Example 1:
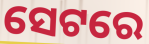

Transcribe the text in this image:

ସେଟରେ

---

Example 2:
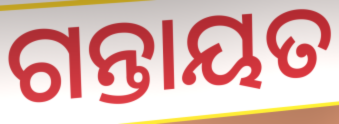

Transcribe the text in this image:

ଗନ୍ତାୟତ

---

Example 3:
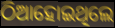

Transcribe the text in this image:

ଠିଆହୋଇଥିଲେ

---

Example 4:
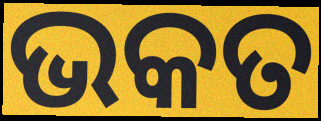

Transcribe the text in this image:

ଭକତ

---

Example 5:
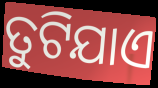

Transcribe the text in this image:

ତୁଟିଯାଏ